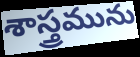
శాస్త్రమును